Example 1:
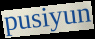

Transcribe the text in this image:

pusiyun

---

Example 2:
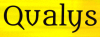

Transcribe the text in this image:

Qualys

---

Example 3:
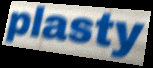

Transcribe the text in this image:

plasty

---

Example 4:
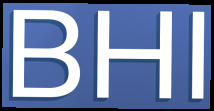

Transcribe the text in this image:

BHI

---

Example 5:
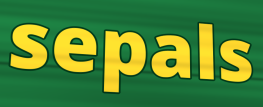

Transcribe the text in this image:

sepals